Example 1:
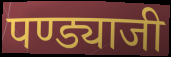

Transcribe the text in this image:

पण्ड्याजी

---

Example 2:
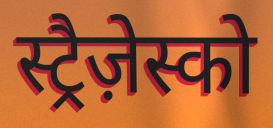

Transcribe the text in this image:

स्ट्रैज़ेस्को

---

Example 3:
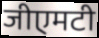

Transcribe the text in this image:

जीएमटी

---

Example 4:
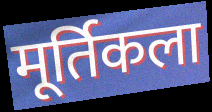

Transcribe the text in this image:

मूर्तिकला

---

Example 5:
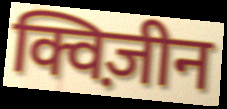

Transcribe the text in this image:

क्विज़ीन